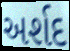
અર્શદ